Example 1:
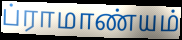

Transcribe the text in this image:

ப்ராமாண்யம்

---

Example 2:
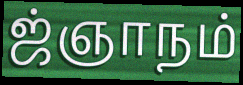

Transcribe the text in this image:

ஜ்ஞாநம்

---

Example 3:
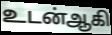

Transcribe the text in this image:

உடன்ஆகி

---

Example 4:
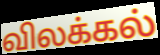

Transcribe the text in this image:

விலக்கல்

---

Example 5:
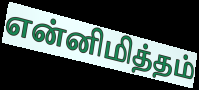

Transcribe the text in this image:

என்னிமித்தம்